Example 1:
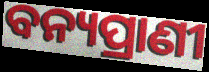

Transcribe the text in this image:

ବନ୍ୟପ୍ରାଣୀ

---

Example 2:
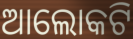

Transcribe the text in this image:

ଆଲୋକଟି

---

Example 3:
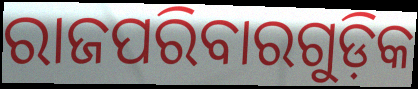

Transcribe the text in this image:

ରାଜପରିବାରଗୁଡ଼ିକ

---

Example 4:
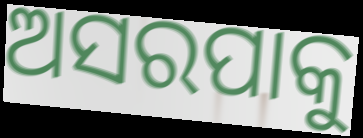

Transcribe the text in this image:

ଅସରପାକୁ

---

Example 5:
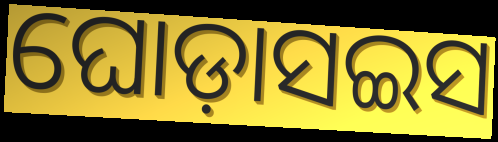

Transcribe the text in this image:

ଘୋଡ଼ାସଇସ